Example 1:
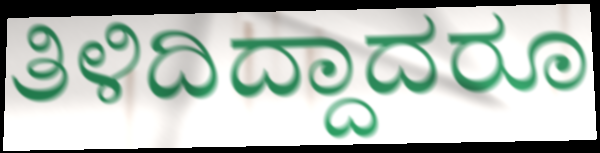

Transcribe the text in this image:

ತಿಳಿದಿದ್ದಾದರೂ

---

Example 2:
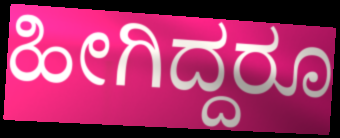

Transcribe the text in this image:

ಹೀಗಿದ್ದರೂ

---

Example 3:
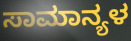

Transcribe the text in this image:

ಸಾಮಾನ್ಯಳ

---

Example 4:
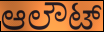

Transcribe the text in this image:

ಆಲೌಟ್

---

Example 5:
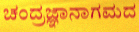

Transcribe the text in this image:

ಚಂದ್ರಜ್ಞಾನಾಗಮದ